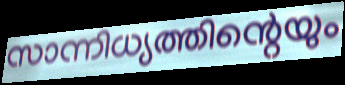
സാന്നിധ്യത്തിന്റെയും